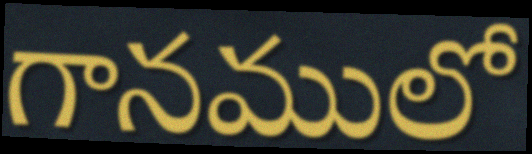
గానములో